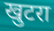
खुटरा